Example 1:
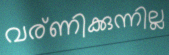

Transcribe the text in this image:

വര്ണിക്കുന്നില്ല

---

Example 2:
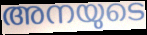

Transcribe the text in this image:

അനയുടെ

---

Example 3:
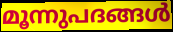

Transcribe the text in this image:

മൂന്നുപദങ്ങൾ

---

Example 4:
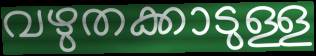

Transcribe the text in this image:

വഴുതക്കാടുള്ള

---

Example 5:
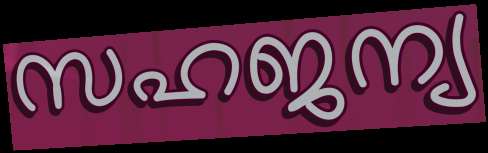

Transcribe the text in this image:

സഹജന്യ